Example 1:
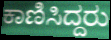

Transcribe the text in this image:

ಕಾಣಿಸಿದ್ದರು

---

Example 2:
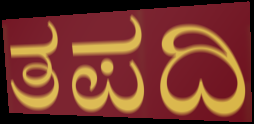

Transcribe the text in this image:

ತಪದಿ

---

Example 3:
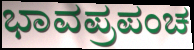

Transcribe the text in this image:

ಭಾವಪ್ರಪಂಚ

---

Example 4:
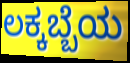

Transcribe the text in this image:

ಲಕ್ಕಬ್ಬೆಯ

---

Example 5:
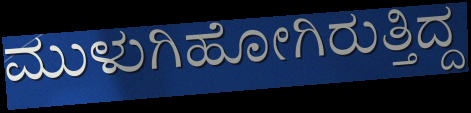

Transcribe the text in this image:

ಮುಳುಗಿಹೋಗಿರುತ್ತಿದ್ದ